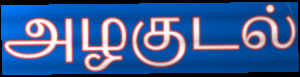
அழகுடல்